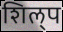
शिल्प